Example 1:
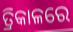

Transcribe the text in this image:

ତ୍ରିକାଳରେ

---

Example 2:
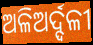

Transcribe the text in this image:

ଅଳିଅର୍ଦ୍ଦଳୀ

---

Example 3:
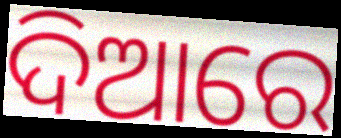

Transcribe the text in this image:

ଦିଆରେ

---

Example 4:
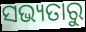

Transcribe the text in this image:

ସଭ୍ୟତାରୁ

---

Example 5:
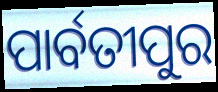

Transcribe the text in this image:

ପାର୍ବତୀପୁର